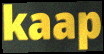
kaap